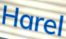
Harel